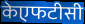
केएफटीसी